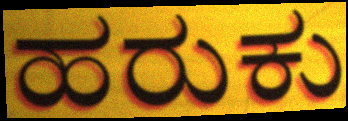
ಹರುಕು